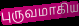
புருவமாகிய